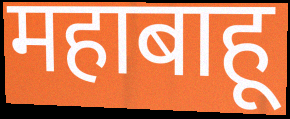
महाबाहू